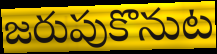
జరుపుకొనుట